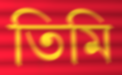
তিমি